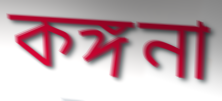
কঙ্গনা